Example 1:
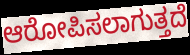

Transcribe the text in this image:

ಆರೋಪಿಸಲಾಗುತ್ತದೆ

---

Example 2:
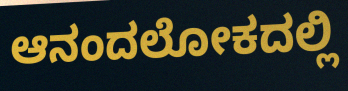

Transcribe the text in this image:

ಆನಂದಲೋಕದಲ್ಲಿ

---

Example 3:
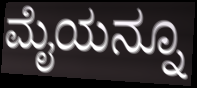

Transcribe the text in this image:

ಮೈಯನ್ನೂ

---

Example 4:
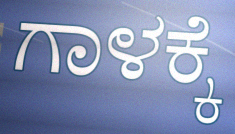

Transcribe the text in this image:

ಗಾಳಕ್ಕೆ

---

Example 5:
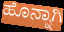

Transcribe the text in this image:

ಹೊನ್ನಾಗಿ